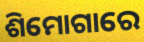
ଶିମୋଗାରେ